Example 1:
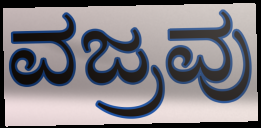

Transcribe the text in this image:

ವಜ್ರವು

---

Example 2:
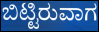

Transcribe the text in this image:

ಬಿಟ್ಟಿರುವಾಗ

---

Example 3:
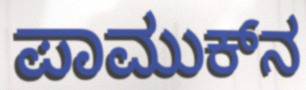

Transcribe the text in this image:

ಪಾಮುಕ್‍ನ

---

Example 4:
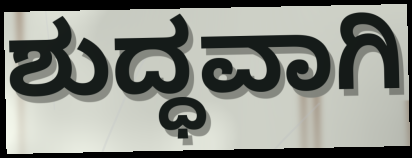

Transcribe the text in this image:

ಶುದ್ಧವಾಗಿ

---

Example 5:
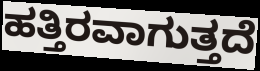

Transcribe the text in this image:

ಹತ್ತಿರವಾಗುತ್ತದೆ